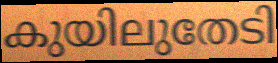
കുയിലുതേടി